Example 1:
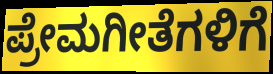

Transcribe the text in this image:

ಪ್ರೇಮಗೀತೆಗಳಿಗೆ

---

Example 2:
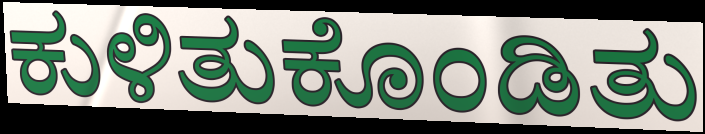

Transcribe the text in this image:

ಕುಳಿತುಕೊಂಡಿತು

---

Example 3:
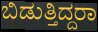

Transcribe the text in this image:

ಬಿಡುತ್ತಿದ್ದರಾ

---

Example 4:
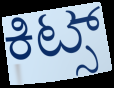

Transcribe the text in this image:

ಕಿಟ್ಸ್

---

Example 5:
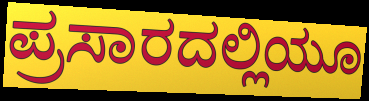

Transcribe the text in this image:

ಪ್ರಸಾರದಲ್ಲಿಯೂ